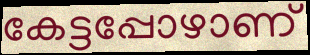
കേട്ടപ്പോഴാണ്